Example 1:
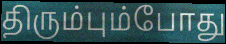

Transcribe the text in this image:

திரும்பும்போது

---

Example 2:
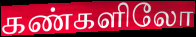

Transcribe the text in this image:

கண்களிலோ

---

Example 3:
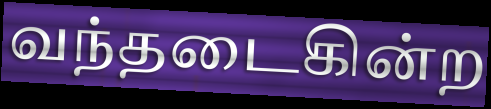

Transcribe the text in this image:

வந்தடைகின்ற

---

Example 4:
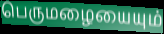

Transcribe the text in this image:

பெருமழையையும்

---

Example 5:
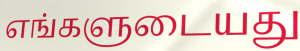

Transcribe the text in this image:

எங்களுடையது